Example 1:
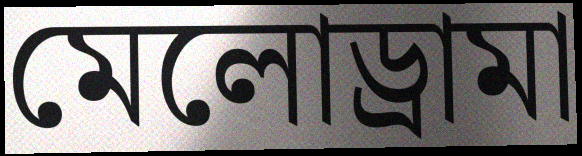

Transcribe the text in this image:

মেলোড্রামা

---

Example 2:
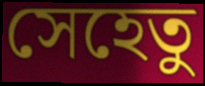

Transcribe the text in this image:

সেহেতু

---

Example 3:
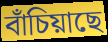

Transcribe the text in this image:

বাঁচিয়াছে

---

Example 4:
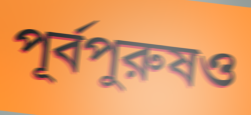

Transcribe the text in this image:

পূর্বপুরুষও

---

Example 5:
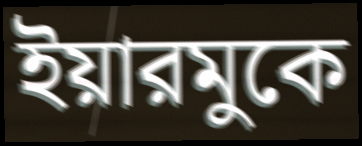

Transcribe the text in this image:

ইয়ারমুকে